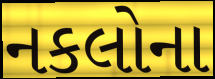
નકલોના